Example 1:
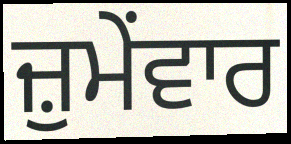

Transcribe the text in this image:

ਜ਼ੁਮੇਂਵਾਰ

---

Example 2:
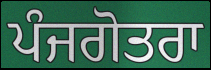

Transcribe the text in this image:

ਪੰਜਗੋਤਰਾ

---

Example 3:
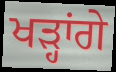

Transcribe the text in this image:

ਖੜ੍ਹਾਂਗੇ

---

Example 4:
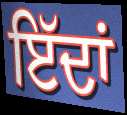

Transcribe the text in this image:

ਇੱਦਾਂ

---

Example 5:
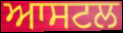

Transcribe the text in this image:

ਆਸਟਲ